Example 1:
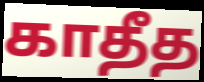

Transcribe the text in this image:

காதீத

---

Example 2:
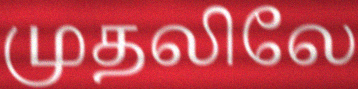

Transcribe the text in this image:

முதலிலே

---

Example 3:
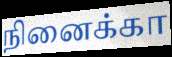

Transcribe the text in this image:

நினைக்கா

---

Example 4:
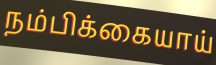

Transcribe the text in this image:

நம்பிக்கையாய்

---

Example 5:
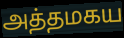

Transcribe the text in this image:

அத்தமகய